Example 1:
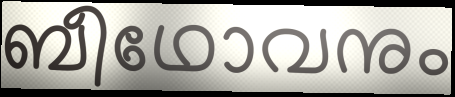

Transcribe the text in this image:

ബീഥോവനും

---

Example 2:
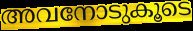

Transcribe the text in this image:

അവനോടുകൂടെ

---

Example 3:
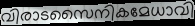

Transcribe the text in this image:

വിരാടസൈനികമേധാവി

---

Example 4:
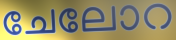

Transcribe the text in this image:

ചേലോറ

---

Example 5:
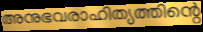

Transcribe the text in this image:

അനുഭവരാഹിത്യത്തിന്റെ